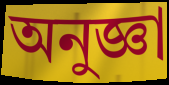
অনুজ্ঞা